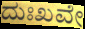
ದುಃಖವೇ